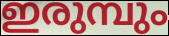
ഇരുമ്പും